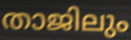
താജിലും